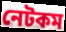
নেটকম